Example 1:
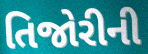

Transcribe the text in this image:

તિજોરીની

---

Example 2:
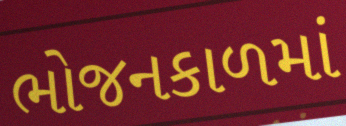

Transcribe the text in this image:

ભોજનકાળમાં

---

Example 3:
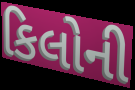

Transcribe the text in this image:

કિલોની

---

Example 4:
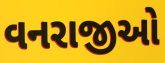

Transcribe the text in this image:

વનરાજીઓ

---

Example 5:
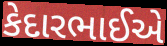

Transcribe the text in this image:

કેદારભાઈએ